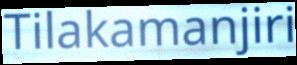
Tilakamanjiri